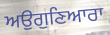
ਅਉਗੁਣਿਆਰਾ